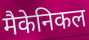
मैकेनिकल